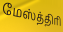
மேஸ்த்திரி